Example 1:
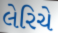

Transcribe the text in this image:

લેરિચે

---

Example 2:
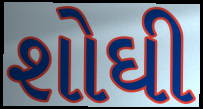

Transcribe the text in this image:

શોઘી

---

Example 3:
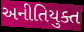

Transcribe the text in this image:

અનીતિયુક્ત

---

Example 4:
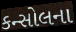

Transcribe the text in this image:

કન્સોલના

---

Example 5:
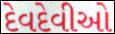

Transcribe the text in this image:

દેવદેવીઓ